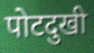
पोटदुखी